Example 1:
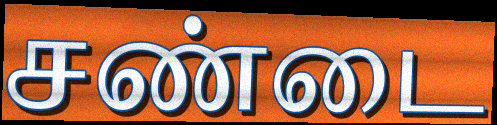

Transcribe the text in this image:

சண்டை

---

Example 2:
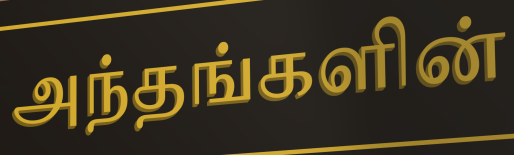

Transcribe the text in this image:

அந்தங்களின்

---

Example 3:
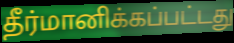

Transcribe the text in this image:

தீர்மானிக்கப்பட்டது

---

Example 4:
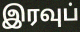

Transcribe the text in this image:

இரவுப்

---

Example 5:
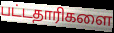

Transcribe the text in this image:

பட்டதாரிகளை